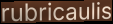
rubricaulis